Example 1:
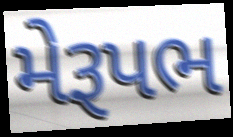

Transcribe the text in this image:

મેરૂપભ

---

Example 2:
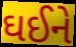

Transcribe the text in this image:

ઘઈને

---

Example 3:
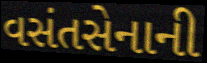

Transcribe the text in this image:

વસંતસેનાની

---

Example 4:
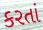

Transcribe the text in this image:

કરતાં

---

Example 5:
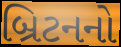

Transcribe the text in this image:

બ્રિટનનો